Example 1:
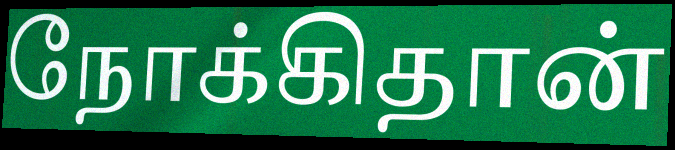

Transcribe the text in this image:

நோக்கிதான்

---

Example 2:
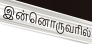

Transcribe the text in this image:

இன்னொருவரில்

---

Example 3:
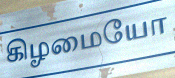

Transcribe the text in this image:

கிழமையோ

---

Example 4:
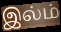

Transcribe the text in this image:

இல்ம்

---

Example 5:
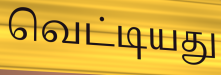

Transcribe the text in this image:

வெட்டியது